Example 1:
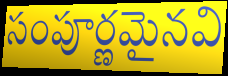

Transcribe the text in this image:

సంపూర్ణమైనవి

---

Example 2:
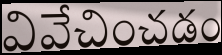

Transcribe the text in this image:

వివేచించడం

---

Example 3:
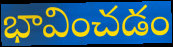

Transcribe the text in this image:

భావించడం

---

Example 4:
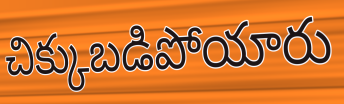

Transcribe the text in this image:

చిక్కుబడిపోయారు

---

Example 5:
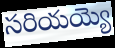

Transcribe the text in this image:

సరియయ్యె